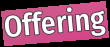
Offering